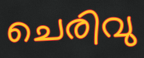
ചെരിവു